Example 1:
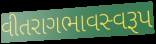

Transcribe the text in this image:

વીતરાગભાવસ્વરૂપ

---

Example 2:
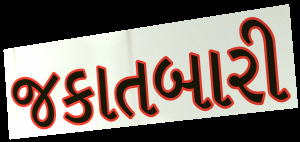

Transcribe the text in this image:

જકાતબારી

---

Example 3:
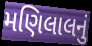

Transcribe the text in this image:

મણિલાલનું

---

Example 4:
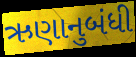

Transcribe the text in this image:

ઋણાનુબંધી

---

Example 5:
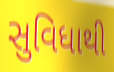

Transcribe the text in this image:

સુવિધાથી